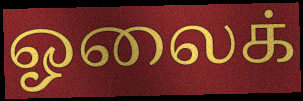
ஓலைக்